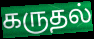
கருதல்